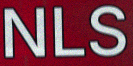
NLS